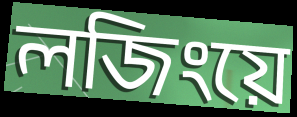
লজিংয়ে